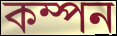
কম্পন